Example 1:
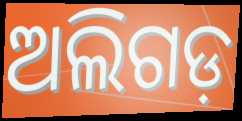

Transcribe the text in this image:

ଅଲିଗଡ଼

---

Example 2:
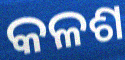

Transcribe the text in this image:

କଳଶ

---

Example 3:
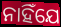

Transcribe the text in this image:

ନାହିଁଯେ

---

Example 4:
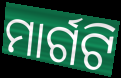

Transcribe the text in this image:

ମାର୍ଗଟି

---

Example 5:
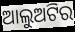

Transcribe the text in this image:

ଆଲୁଅଟିର